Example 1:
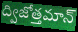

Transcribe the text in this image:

ద్విజోత్తమాన్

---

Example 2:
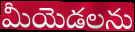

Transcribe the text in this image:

మీయెడలను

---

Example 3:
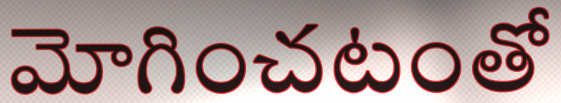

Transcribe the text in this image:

మోగించటంతో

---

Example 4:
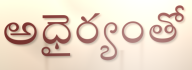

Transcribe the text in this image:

అధైర్యంతో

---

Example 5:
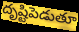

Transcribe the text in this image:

దృష్టిపెడుతూ